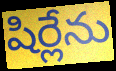
షిర్లేను